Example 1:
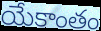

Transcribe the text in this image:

యేకాంతం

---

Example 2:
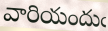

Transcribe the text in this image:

వారియందుఁ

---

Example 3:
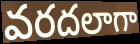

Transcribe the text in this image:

వరదలాగా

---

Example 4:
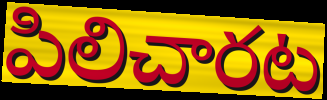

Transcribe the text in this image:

పిలిచారట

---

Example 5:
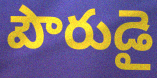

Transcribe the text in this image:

పౌరుడై